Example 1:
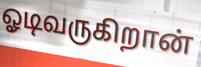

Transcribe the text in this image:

ஓடிவருகிறான்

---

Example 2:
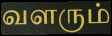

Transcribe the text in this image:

வளரும்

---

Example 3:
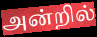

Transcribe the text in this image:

அன்றில்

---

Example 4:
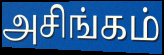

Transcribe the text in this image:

அசிங்கம்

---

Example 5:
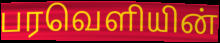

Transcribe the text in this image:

பரவெளியின்